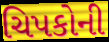
ચિપકોની